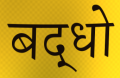
बद्धो